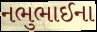
નભુભાઈના